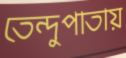
তেন্দুপাতায়